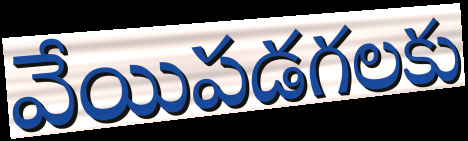
వేయిపడగలకు